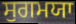
ਸੁਗਮਯਾ